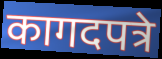
कागदपत्रे